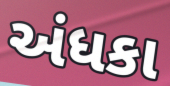
અંધકા